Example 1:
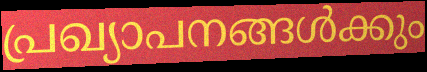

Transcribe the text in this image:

പ്രഖ്യാപനങ്ങൾക്കും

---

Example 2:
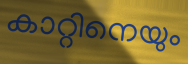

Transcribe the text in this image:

കാറ്റിനെയും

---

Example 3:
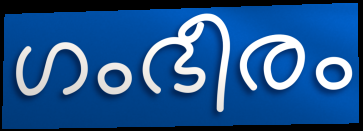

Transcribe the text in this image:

ഗംഭീരം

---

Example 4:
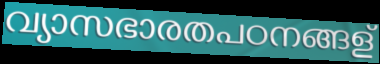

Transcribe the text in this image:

വ്യാസഭാരതപഠനങ്ങള്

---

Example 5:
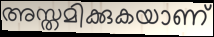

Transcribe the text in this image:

അസ്തമിക്കുകയാണ്